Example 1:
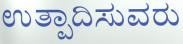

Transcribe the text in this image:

ಉತ್ಪಾದಿಸುವರು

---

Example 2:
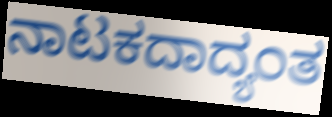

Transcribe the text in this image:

ನಾಟಕದಾದ್ಯಂತ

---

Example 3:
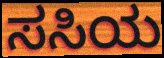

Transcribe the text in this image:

ಸಸಿಯ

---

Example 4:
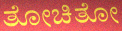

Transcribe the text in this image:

ತೋಚಿತೋ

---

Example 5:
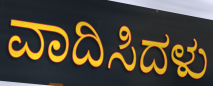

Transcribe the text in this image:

ವಾದಿಸಿದಳು